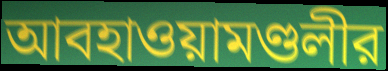
আবহাওয়ামণ্ডলীর